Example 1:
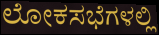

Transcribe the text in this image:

ಲೋಕಸಭೆಗಳಲ್ಲಿ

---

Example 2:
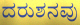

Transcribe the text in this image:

ದರುಶನವು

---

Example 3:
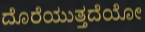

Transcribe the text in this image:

ದೊರೆಯುತ್ತದೆಯೋ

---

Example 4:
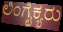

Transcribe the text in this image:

ಲಿಂಗೈಕ್ಯರು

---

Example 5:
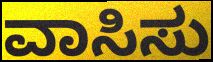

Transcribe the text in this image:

ವಾಸಿಸು